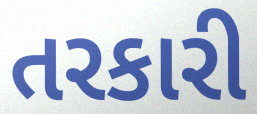
તરકારી